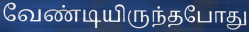
வேண்டியிருந்தபோது